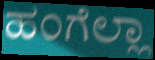
ಹಂಗೆಲ್ಲಾ